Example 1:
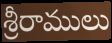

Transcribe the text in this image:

శ్రీరాములు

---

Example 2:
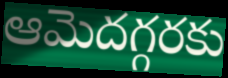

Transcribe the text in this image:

ఆమెదగ్గరకు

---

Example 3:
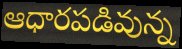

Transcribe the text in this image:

ఆధారపడివున్న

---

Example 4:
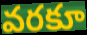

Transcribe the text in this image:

వరకూ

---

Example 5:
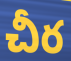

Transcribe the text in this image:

చీర